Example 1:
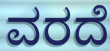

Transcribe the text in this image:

ವರದೆ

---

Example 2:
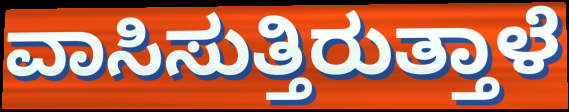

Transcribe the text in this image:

ವಾಸಿಸುತ್ತಿರುತ್ತಾಳೆ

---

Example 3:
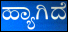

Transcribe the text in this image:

ಹ್ಯಾಗಿದೆ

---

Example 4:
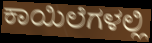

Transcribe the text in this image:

ಕಾಯಿಲೆಗಳಲ್ಲಿ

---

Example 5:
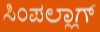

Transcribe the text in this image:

ಸಿಂಪಲ್ಲಾಗ್